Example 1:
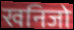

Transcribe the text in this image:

खनिजो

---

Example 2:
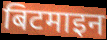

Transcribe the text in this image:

बिटमाइन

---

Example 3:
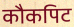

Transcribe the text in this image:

कौकपिट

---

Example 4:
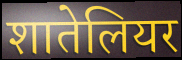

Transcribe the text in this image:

शातेलियर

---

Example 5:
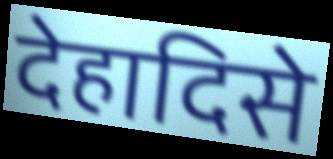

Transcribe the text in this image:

देहादिसे